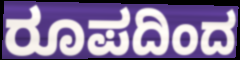
ರೂಪದಿಂದ